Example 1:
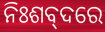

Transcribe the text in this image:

ନିଃଶବ୍‌ଦରେ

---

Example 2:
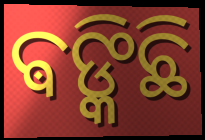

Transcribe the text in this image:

ଵଙ୍କିଛି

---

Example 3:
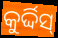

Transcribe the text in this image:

କୁର୍ଦ୍ଦିସ୍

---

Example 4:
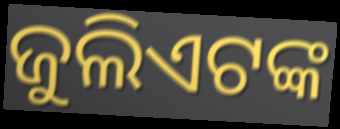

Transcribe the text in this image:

ଜୁଲିଏଟଙ୍କ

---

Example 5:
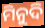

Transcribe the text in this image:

ମିନୁଦି